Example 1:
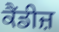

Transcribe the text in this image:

ਕੈਂਡੀਜ਼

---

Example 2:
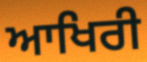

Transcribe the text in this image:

ਆਖਿਰੀ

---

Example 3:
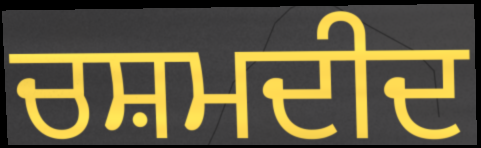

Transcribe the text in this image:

ਚਸ਼ਮਦੀਦ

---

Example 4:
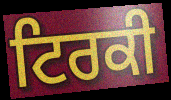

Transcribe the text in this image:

ਟਿਰਕੀ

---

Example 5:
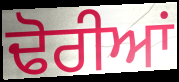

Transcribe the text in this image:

ਢੋਰੀਆਂ